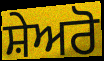
ਸ਼ੇਅਰੋ